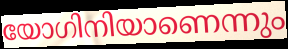
യോഗിനിയാണെന്നും